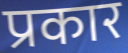
प्रकार